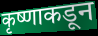
कृष्णाकडून